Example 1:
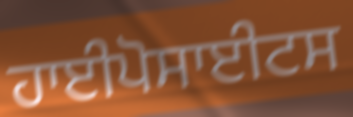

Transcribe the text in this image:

ਹਾਈਪੋਸਾਈਟਸ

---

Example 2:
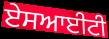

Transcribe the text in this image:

ਏਸਆਈਟੀ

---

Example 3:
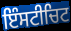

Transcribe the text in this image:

ਇੰਸਟੀਚਿਟ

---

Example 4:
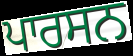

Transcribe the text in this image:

ਪਾਰਸਨ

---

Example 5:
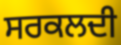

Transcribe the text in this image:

ਸਰਕਲਦੀ